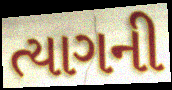
ત્‍યાગની